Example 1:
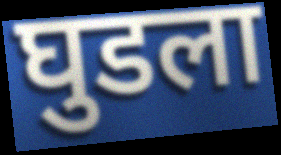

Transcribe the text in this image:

घुडला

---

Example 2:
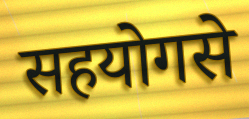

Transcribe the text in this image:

सहयोगसे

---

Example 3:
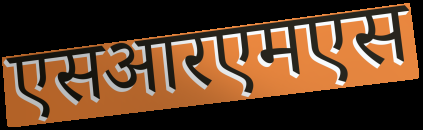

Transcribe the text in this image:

एसआरएमएस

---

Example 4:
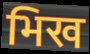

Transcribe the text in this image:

भिख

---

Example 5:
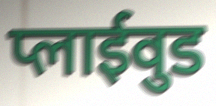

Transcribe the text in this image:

प्‍लाईवुड